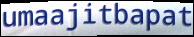
umaajitbapat